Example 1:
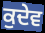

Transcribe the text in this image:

ਕੁਦੇਵ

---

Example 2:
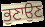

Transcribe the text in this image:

ਭੁਣਾਉਣ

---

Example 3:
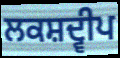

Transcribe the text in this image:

ਲਕਸ਼ਦ੍ਵੀਪ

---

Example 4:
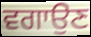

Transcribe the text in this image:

ਵਗਾਉਣ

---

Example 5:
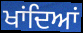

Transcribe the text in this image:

ਖਾਂਦਿਆਂ